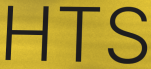
HTS